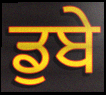
ਡੁਬੇ